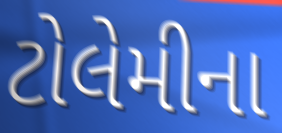
ટોલેમીના